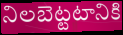
నిలబెట్టటానికి